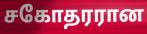
சகோதரரான